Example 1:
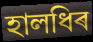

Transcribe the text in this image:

হালধিৰ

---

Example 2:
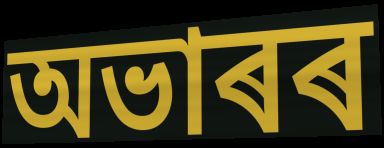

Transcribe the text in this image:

অভাৰৰ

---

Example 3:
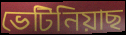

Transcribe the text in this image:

ভেটিনিয়াছ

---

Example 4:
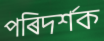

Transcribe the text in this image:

পৰিদৰ্শক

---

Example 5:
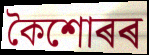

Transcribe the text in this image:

কৈশোৰৰ